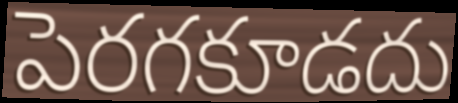
పెరగకూడదు